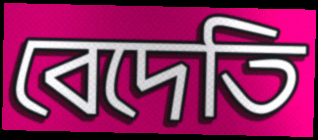
বেদেতি